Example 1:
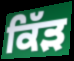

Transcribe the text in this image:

ਕਿੱੜ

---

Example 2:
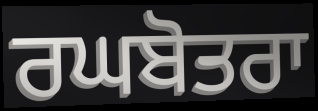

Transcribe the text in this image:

ਰਘਬੋਤਰਾ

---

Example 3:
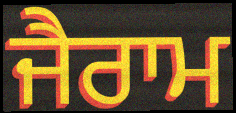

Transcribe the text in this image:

ਜੈਰਾਮ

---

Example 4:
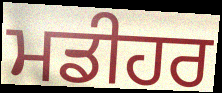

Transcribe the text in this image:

ਮਡੀਹਰ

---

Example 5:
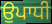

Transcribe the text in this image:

ਉਪਾਧੀ